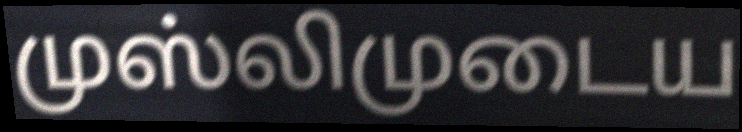
முஸ்லிமுடைய